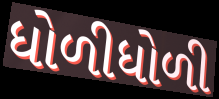
ધોળીધોળી